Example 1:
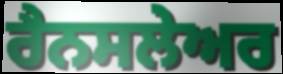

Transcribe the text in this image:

ਰੈਨਸਲੇਅਰ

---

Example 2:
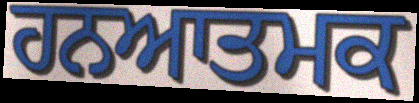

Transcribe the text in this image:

ਹਨਆਤਮਕ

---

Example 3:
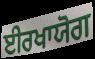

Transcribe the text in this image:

ਈਰਖਾਯੋਗ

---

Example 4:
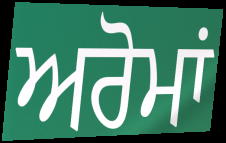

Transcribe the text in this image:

ਅਰੋਮਾਂ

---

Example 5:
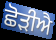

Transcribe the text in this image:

ਛੋੜੀਐ